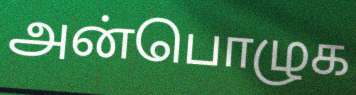
அன்பொழுக